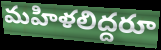
మహిళలిద్దరూ